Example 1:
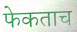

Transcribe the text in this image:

फेकताच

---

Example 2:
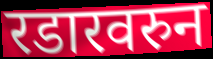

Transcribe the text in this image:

रडारवरुन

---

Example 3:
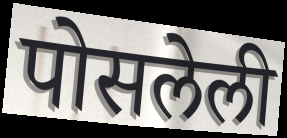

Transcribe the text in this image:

पोसलेली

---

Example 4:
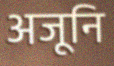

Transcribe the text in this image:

अजूनि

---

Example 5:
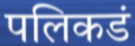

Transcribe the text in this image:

पलिकडं